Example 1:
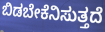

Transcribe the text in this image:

ಬಿಡಬೇಕೆನಿಸುತ್ತದೆ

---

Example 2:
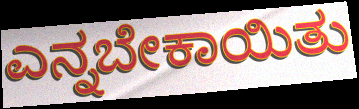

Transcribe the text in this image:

ಎನ್ನಬೇಕಾಯಿತು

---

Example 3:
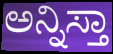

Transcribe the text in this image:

ಅನ್ನಿಸ್ತಾ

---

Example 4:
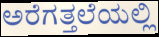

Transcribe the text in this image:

ಅರೆಗತ್ತಲೆಯಲ್ಲಿ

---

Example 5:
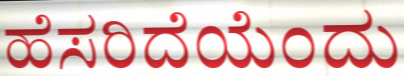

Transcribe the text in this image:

ಹೆಸರಿದೆಯೆಂದು